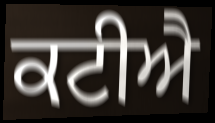
ਕਟੀਐ